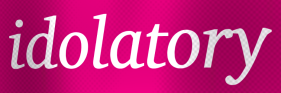
idolatory